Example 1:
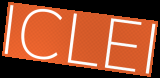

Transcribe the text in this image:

ICLEI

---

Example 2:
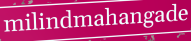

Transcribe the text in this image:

milindmahangade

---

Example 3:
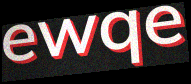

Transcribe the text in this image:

ewqe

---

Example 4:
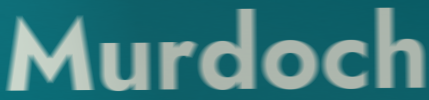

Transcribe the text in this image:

Murdoch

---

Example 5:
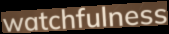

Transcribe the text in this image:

watchfulness